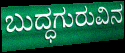
ಬುದ್ಧಗುರುವಿನ